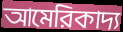
আমেরিকাদ্য